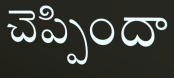
చెప్పిందా